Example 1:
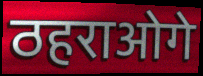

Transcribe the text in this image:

ठहराओगे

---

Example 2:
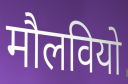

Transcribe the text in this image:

मौलवियो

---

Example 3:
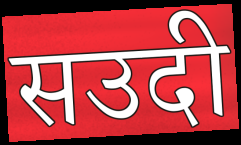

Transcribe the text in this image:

सउदी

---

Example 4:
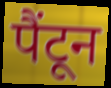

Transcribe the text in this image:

पैंटून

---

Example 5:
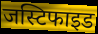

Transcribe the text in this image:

जस्टिफाइड